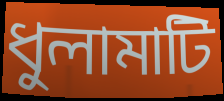
ধুলামাটি